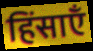
हिंसाएँ